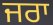
ਜਰਾ